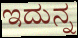
ಇದುನ್ನ